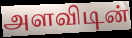
அளவிடின்